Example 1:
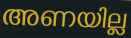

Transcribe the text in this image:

അണയില്ല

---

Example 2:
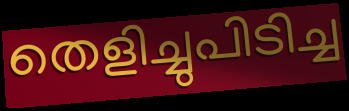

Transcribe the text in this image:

തെളിച്ചുപിടിച്ച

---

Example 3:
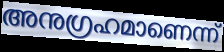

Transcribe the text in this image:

അനുഗ്രഹമാണെന്ന്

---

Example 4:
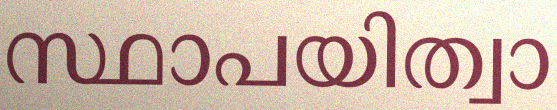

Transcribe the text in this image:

സ്ഥാപയിത്വാ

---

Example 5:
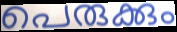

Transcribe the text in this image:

പെരുക്കും